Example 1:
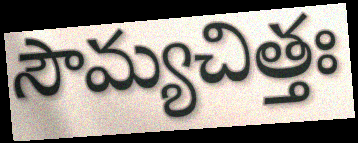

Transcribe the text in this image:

సౌమ్యచిత్తః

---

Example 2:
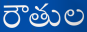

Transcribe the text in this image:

రౌతుల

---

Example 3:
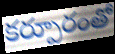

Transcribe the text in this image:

కర్పూరంతో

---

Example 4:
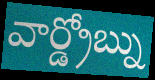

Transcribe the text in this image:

వార్డ్రోబ్ను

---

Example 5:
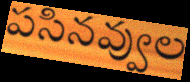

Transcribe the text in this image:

పసినవ్వుల